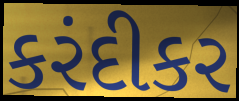
કરંદીકર